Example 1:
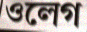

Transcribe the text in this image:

ওলেগ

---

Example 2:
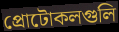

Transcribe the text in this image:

প্রোটোকলগুলি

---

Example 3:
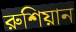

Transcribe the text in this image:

রুশিয়ান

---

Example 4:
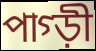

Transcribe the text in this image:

পাগ্ড়ী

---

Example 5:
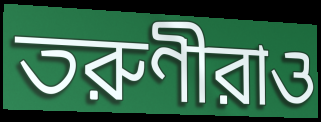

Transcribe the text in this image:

তরুণীরাও